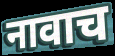
नावाच